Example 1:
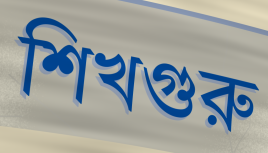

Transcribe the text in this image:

শিখগুরু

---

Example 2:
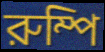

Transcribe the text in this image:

রুম্পি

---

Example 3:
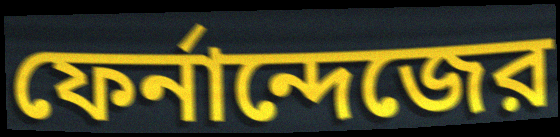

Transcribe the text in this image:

ফের্নান্দেজের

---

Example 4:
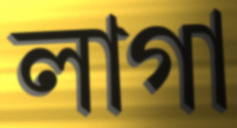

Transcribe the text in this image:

লাগা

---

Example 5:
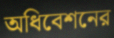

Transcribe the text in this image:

অধিবেশনের